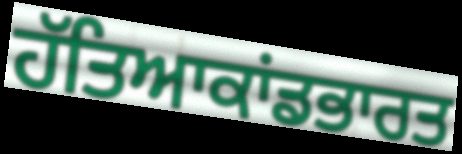
ਹੱਤਿਆਕਾਂਡਭਾਰਤ